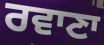
ਰਵਾਣਾ